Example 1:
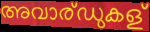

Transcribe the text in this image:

അവാര്ഡുകള്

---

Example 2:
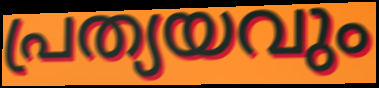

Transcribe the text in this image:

പ്രത്യയവും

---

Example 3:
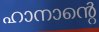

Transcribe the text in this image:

ഹാനാന്റെ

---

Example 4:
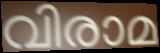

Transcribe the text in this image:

വിരാമ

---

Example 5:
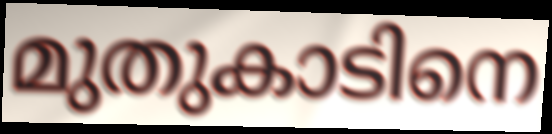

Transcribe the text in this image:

മുതുകാടിനെ